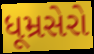
ધૂમ્રસેરો